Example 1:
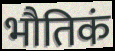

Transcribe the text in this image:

भौतिकं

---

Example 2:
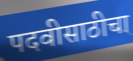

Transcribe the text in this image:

पदवीसाठीचा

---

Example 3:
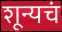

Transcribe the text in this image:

शून्यचं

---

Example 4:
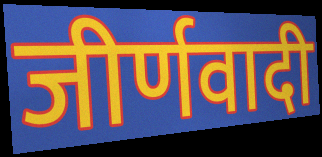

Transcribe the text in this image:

जीर्णवादी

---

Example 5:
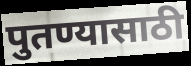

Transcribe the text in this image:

पुतण्यासाठी